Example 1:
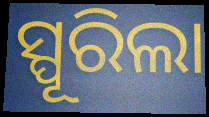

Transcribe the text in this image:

ସ୍ପୂରିଲା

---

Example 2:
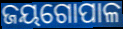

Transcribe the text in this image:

ଜୟଗୋପାଳ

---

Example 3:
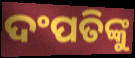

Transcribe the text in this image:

ଦଂପତିଙ୍କୁ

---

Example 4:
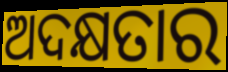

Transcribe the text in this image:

ଅଦକ୍ଷତାର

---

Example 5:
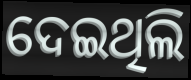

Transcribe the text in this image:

ଦେଇଥିଲି